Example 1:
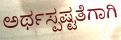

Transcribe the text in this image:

ಅರ್ಥಸ್ಪಷ್ಟತೆಗಾಗಿ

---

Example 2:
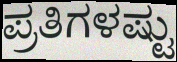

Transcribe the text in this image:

ಪ್ರತಿಗಳಷ್ಟು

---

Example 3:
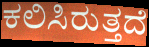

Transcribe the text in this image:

ಕಲಿಸಿರುತ್ತದೆ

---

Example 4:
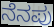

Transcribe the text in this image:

ನೆನಪು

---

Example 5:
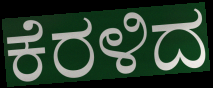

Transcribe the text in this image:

ಕೆರಳಿದ